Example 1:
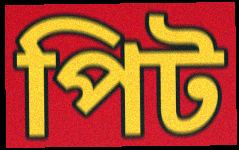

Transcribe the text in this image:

পিট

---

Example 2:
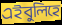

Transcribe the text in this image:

এইবুলিহে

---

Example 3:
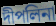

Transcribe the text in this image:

দীপলিনা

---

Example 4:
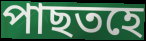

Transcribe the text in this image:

পাছতহে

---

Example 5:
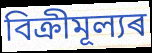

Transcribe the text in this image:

বিক্ৰীমূল্যৰ